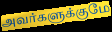
அவர்களுக்குமே